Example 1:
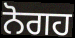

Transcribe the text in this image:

ਨੋਗਹ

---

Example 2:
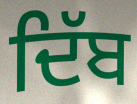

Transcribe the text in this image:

ਦਿੱਬ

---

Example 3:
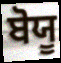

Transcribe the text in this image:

ਬੋਯੂ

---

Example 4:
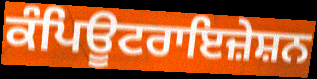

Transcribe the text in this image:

ਕੰਪਿਊਟਰਾਇਜ਼ੇਸ਼ਨ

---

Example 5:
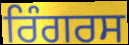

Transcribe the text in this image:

ਰਿੰਗਰਸ